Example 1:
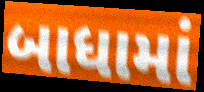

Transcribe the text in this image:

બાધામાં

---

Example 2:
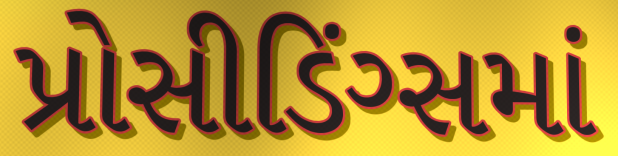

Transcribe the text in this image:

પ્રોસીડિંગ્સમાં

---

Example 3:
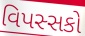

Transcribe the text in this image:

વિપસ્સકો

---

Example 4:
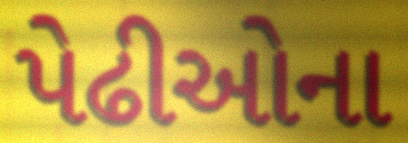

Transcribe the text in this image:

પેઢીઓના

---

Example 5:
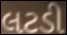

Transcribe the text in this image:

લટડી